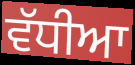
ਵੱਧੀਆ